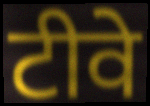
टीवे